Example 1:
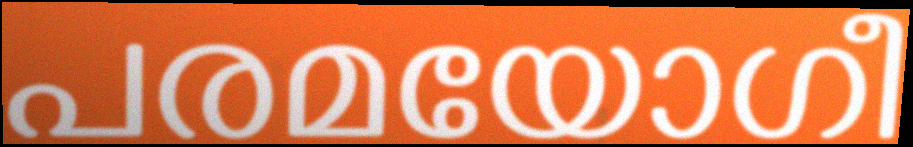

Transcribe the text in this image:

പരമയോഗീ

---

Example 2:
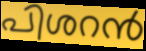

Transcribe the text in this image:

പിശറൻ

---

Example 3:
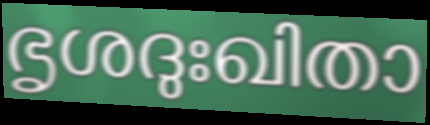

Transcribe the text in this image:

ഭൃശദുഃഖിതാ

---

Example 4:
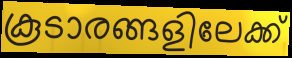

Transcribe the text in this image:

കൂടാരങ്ങളിലേക്ക്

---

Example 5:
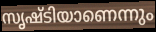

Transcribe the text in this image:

സൃഷ്ടിയാണെന്നും